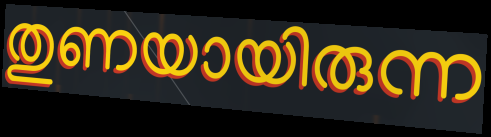
തുണയായിരുന്ന